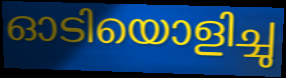
ഓടിയൊളിച്ചു